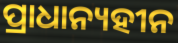
ପ୍ରାଧାନ୍ୟହୀନ